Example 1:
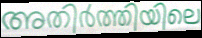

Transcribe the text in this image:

അതിർത്തിയിലെ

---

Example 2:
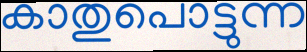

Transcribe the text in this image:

കാതുപൊട്ടുന്ന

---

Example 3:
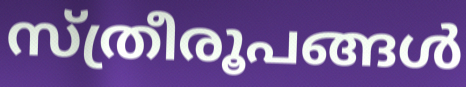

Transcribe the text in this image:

സ്ത്രീരൂപങ്ങൾ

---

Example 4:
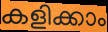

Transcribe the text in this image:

കളിക്കാം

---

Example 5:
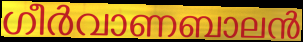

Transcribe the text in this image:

ഗീർവാണബാലൻ